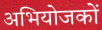
अभियोजकों